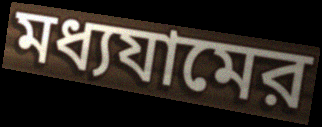
মধ্যযামের